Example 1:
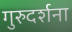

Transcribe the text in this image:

गुरुदर्शना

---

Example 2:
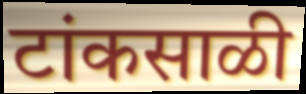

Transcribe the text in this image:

टांकसाळी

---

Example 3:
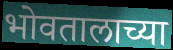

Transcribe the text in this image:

भोवतालाच्या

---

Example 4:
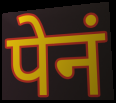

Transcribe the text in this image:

पेनं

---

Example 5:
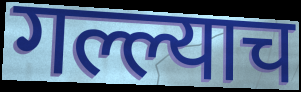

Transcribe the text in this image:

गल्ल्याच